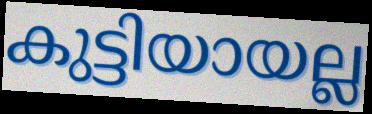
കുട്ടിയായല്ല